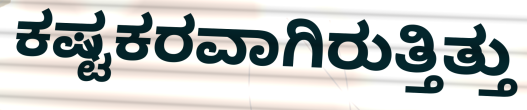
ಕಷ್ಟಕರವಾಗಿರುತ್ತಿತ್ತು